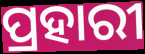
ପ୍ରହାରୀ